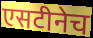
एसटीनेच